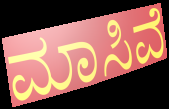
ಮಾಸಿವೆ